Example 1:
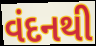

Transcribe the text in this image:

વંદનથી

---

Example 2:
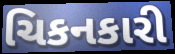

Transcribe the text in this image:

ચિકનકારી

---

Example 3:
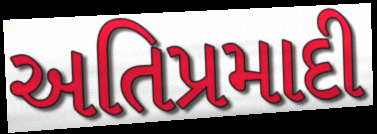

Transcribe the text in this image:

અતિપ્રમાદી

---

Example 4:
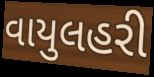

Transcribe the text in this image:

વાયુલહરી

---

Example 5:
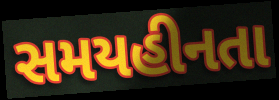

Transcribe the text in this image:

સમયહીનતા